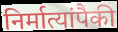
निर्मात्यांपैकी